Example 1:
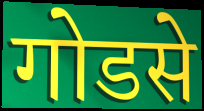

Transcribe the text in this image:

गोडसे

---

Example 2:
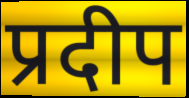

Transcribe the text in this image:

प्रदीप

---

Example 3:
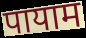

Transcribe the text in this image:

पायाम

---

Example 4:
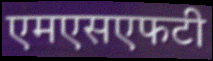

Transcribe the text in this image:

एमएसएफटी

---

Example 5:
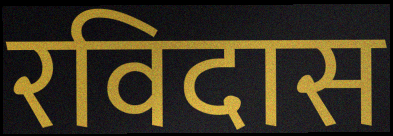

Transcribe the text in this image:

रविदास